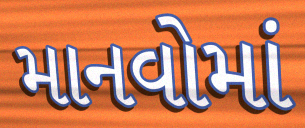
માનવોમાં